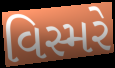
વિસ્મરે